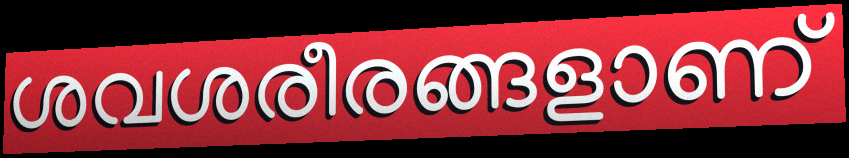
ശവശരീരങ്ങളാണ്